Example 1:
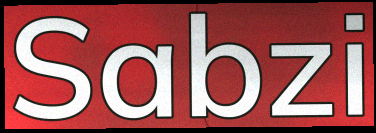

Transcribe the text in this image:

Sabzi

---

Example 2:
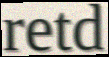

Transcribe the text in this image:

retd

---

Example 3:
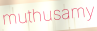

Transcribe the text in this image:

muthusamy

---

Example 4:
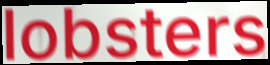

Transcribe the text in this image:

lobsters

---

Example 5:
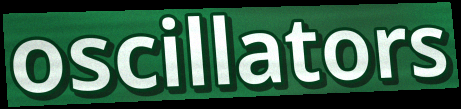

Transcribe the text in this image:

oscillators